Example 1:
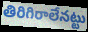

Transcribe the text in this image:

తిరిగిరాలేనట్టు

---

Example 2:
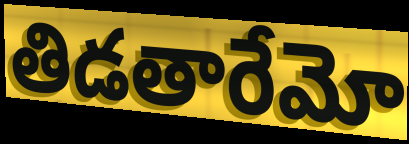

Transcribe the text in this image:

తిడతారేమో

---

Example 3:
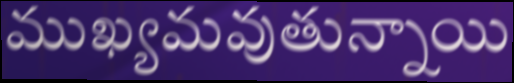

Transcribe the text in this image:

ముఖ్యమవుతున్నాయి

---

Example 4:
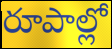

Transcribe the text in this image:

రూపాల్లో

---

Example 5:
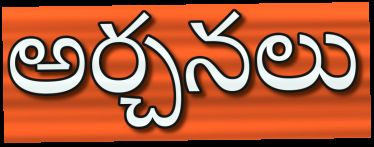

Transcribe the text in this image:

అర్చనలు